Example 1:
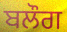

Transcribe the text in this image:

ਬਲੌਗ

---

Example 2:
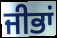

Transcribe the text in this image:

ਜੀਭਾਂ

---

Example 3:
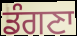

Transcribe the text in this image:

ਡੰਗਣਾ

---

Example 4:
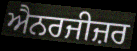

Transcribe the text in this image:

ਐਨਰਜੀਜ਼ਰ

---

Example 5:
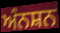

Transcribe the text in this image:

ਅੰਨਸ਼ਨ